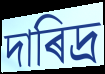
দাৰিদ্ৰ